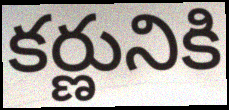
కర్ణునికి